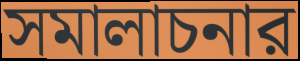
সমালাচনার